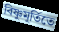
বিষ্ণুমূর্তিতে